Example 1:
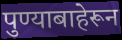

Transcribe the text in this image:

पुण्याबाहेरून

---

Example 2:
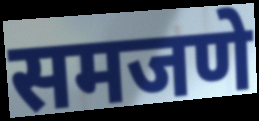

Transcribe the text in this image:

समजणे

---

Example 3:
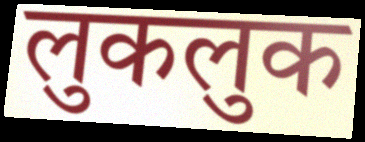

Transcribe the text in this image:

लुकलुक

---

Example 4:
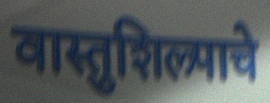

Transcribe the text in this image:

वास्तुशिल्पाचे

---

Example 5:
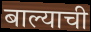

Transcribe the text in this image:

बाल्याची